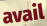
avail